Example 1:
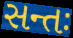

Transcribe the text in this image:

સન્તઃ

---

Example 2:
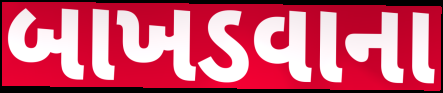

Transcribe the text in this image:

બાખડવાના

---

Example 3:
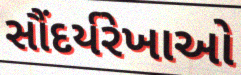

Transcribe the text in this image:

સૌંદર્યરેખાઓ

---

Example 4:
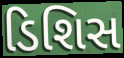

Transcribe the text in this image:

ડિશિસ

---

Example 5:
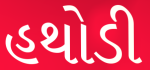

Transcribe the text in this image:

હથોડી